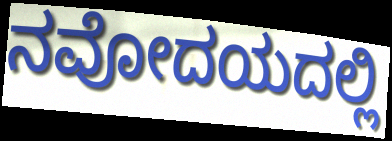
ನವೋದಯದಲ್ಲಿ